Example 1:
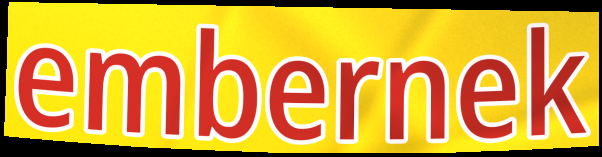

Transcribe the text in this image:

embernek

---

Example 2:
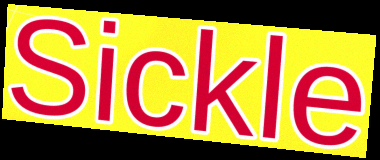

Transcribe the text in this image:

Sickle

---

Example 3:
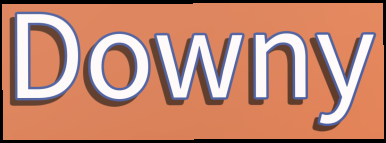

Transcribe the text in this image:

Downy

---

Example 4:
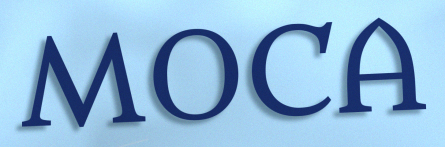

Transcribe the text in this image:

MOCA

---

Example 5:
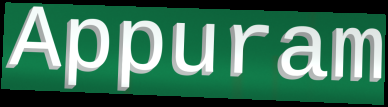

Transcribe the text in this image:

Appuram